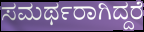
ಸಮರ್ಥರಾಗಿದ್ದರೆ